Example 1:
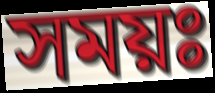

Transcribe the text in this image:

সময়ঃ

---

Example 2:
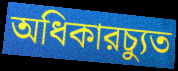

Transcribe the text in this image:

অধিকারচ্যুত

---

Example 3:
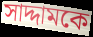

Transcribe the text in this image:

সাদ্দামকে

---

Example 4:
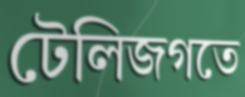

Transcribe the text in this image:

টেলিজগতে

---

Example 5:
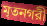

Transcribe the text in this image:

মৃতনগরী